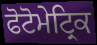
ਫੋਟੋਮੇਟ੍ਰਿਕ